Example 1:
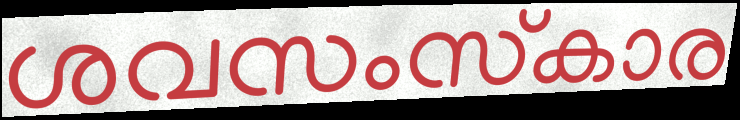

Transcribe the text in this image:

ശവസംസ്‌കാര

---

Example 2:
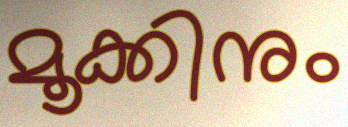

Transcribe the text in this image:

മൂക്കിനും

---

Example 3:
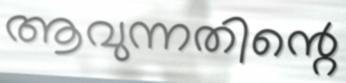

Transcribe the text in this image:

ആവുന്നതിന്റെ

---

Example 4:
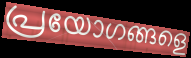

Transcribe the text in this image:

പ്രയോഗങ്ങളെ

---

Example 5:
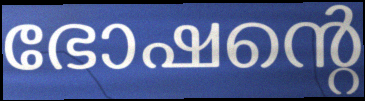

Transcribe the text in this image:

ഭോഷന്റെ